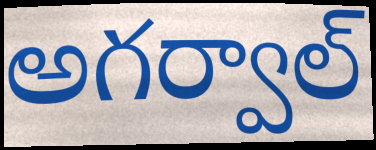
అగర్వాల్